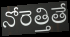
నోరెత్తితే